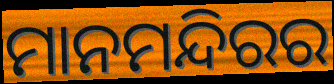
ମାନମନ୍ଦିରର